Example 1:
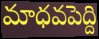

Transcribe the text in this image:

మాధవపెద్ది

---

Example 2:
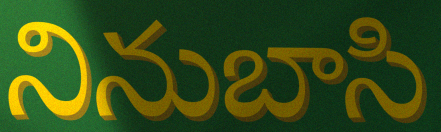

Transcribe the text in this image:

నినుబాసి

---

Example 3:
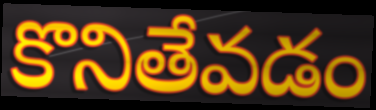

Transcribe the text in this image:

కొనితేవడం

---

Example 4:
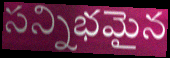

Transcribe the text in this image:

సన్నిభమైన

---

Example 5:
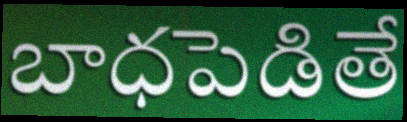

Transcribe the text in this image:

బాధపెడితే